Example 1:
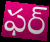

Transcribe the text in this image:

ఫర్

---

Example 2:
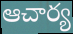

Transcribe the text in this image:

ఆచార్య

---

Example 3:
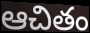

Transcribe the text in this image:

ఆచితం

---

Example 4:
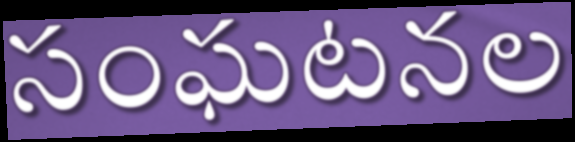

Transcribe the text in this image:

సంఘటనల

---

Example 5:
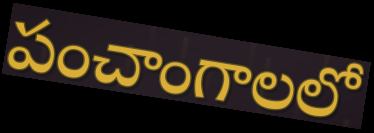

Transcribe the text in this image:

పంచాంగాలలో